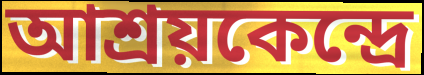
আশ্রয়কেন্দ্রে